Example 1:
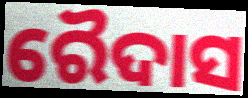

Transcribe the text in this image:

ରୈଦାସ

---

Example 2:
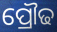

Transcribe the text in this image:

ପ୍ରୌଢ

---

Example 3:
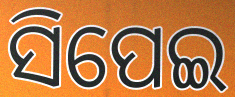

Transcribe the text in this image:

ସିପେଇ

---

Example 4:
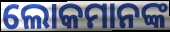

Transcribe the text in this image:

ଲୋକମାନଙ୍କ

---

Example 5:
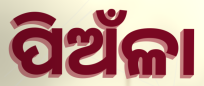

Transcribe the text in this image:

ପିଅଁଳା